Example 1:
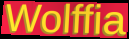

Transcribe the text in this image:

Wolffia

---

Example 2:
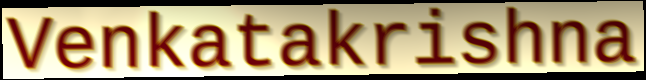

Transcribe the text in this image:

Venkatakrishna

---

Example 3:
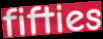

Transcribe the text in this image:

fifties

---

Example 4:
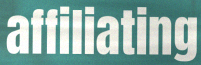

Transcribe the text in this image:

affiliating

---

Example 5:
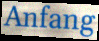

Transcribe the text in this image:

Anfang